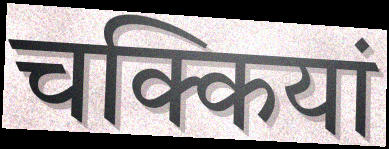
चक्कियां